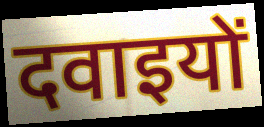
दवाइयों